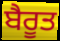
ਬੈਰੂਤ